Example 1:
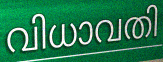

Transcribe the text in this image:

വിധാവതി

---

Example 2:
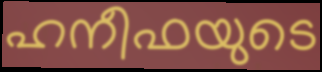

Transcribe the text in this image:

ഹനീഫയുടെ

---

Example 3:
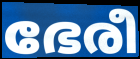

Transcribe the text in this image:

ഭേരീ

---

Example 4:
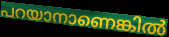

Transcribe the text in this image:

പറയാനാണെങ്കിൽ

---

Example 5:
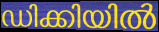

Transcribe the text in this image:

ഡിക്കിയിൽ